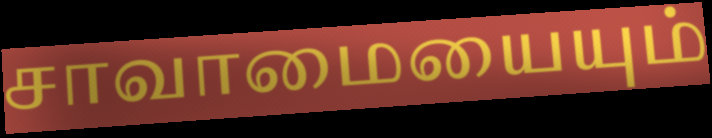
சாவாமையையும்